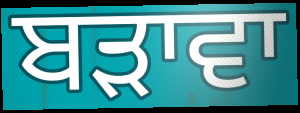
ਬੜਾਵਾ